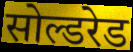
सोल्डरेड